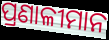
ପ୍ରଣାଳୀମାନ